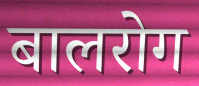
बालरोग